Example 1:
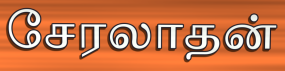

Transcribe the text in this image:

சேரலாதன்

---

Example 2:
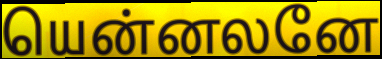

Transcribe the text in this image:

யென்னலனே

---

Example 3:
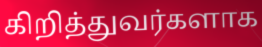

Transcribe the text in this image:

கிறித்துவர்களாக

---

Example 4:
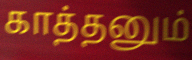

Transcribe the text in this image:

காத்தனும்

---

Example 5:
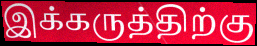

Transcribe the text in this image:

இக்கருத்திற்கு